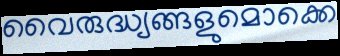
വൈരുദ്ധ്യങ്ങളുമൊക്കെ